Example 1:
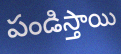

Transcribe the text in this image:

పండిస్తాయి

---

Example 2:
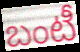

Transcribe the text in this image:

బంటీ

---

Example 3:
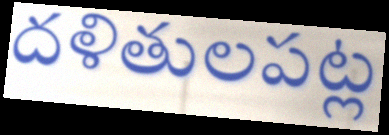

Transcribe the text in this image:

దళితులపట్ల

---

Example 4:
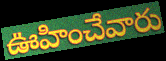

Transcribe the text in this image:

ఊహించేవారు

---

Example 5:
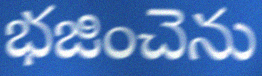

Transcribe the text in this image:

భజించెను